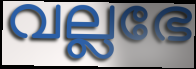
വല്ലഭേ